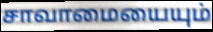
சாவாமையையும்